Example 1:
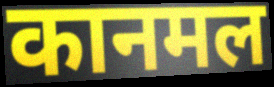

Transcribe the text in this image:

कानमल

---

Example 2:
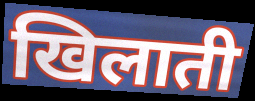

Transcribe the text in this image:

खिलाती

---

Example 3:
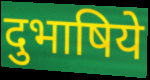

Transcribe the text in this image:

दुभाषिये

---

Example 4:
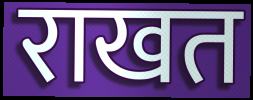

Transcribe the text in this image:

राखत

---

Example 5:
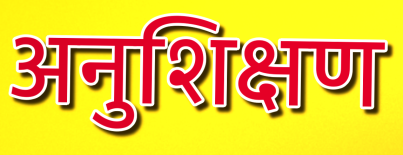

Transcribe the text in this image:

अनुशिक्षण